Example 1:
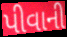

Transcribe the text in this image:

પીવાની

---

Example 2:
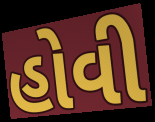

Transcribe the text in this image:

હોવી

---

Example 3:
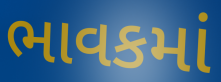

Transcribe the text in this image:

ભાવકમાં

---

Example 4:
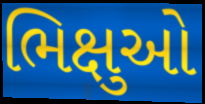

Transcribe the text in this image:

ભિક્ષુઓ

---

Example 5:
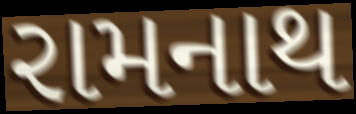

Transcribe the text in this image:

રામનાથ